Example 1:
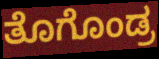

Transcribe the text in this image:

ತೊಗೊಂಡ್ರ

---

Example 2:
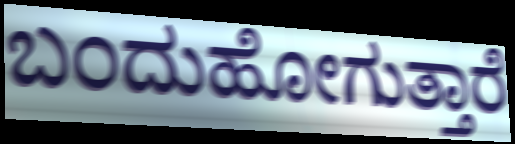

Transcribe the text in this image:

ಬಂದುಹೋಗುತ್ತಾರೆ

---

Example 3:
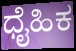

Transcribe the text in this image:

ಧೈಹಿಕ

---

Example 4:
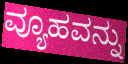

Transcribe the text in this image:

ವ್ಯೂಹವನ್ನು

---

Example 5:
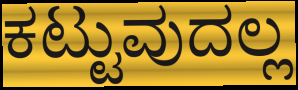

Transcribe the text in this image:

ಕಟ್ಟುವುದಲ್ಲ